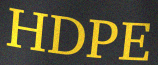
HDPE